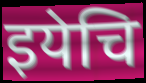
इयेचि